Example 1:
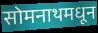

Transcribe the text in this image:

सोमनाथमधून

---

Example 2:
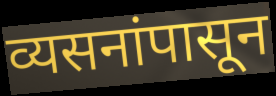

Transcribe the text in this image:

व्यसनांपासून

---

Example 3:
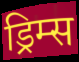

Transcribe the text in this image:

ड्रिम्स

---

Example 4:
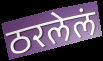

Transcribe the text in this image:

ठरलेलं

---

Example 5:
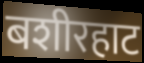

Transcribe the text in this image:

बशीरहाट